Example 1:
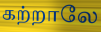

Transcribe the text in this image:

கற்றாலே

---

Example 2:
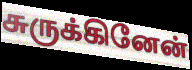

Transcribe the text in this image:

சுருக்கினேன்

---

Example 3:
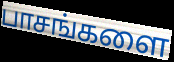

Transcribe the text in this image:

பாசங்களை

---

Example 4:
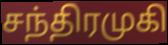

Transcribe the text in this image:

சந்திரமுகி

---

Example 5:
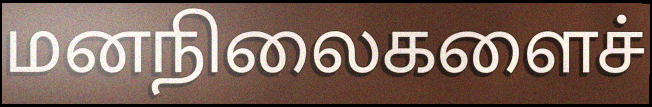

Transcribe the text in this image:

மனநிலைகளைச்